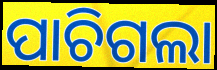
ପାଚିଗଲା